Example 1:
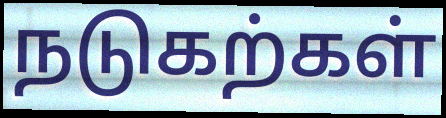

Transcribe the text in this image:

நடுகற்கள்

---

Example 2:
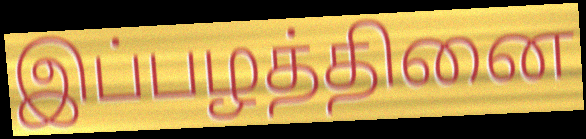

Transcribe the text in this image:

இப்பழத்தினை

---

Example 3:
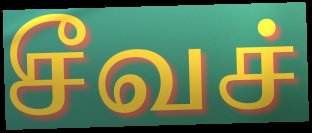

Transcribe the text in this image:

சீவச்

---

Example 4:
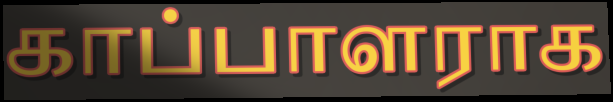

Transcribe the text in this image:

காப்பாளராக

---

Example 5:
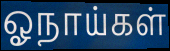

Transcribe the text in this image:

ஓநாய்கள்